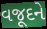
વજૂદને